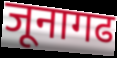
जूनागढ